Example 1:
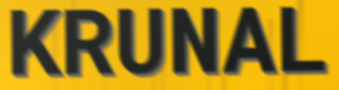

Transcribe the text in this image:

KRUNAL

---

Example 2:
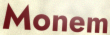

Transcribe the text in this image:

Monem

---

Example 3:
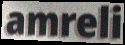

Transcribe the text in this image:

amreli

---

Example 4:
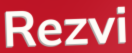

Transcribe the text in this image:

Rezvi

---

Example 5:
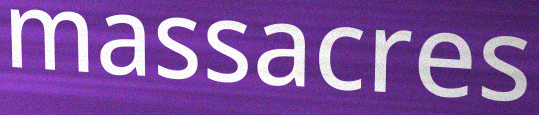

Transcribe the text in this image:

massacres